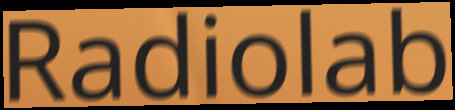
Radiolab